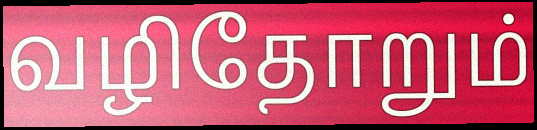
வழிதோறும்